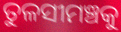
ତୁଳସୀମଞ୍ଚକୁ